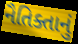
નૈતિક્તાનું